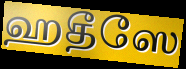
ஹதீஸே